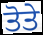
ਤੋਤੇ